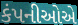
કંપનીઓએ